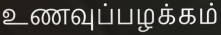
உணவுப்பழக்கம்